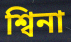
শ্বিনা